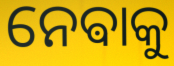
ନେଵାକୁ